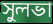
সুলভা